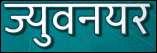
ज्युवनयर